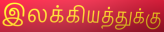
இலக்கியத்துக்கு